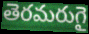
తెరమరుగై